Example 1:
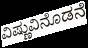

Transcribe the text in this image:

ವಿಷ್ಣುವಿನೊಡನೆ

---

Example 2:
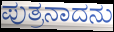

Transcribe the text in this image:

ಪುತ್ರನಾದನು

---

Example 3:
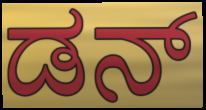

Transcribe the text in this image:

ಡನ್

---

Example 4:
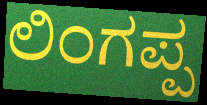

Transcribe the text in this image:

ಲಿಂಗಪ್ಪ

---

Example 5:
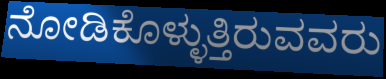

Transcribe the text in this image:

ನೋಡಿಕೊಳ್ಳುತ್ತಿರುವವರು